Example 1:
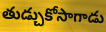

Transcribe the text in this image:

తుడ్చుకోసాగాడు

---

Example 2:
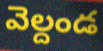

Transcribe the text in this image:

వెల్దండ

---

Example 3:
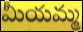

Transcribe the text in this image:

మీయమ్మ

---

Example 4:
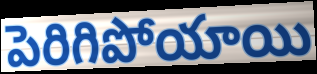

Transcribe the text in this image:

పెరిగిపోయాయి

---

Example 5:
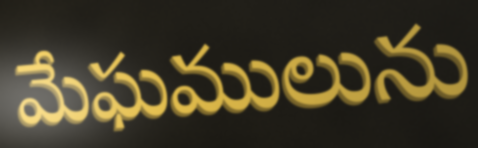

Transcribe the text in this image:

మేఘములును